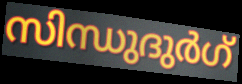
സിന്ധുദുർഗ്